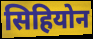
सिहियोन